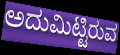
ಅದುಮಿಟ್ಟಿರುವ